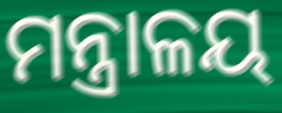
ମନ୍ତ୍ରାଳୟ